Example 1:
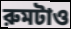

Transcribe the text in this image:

রুমটাও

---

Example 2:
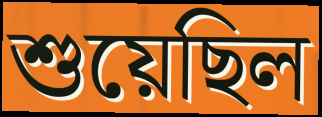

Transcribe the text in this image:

শুয়েছিল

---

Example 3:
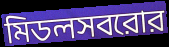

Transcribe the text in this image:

মিডলসবরোর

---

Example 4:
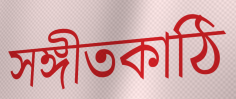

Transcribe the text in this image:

সঙ্গীতকাঠি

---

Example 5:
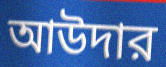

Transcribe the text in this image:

আউদার